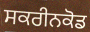
ਸਕਰੀਨਕੋਡ